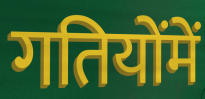
गतियोंमें